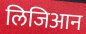
लिजिआन